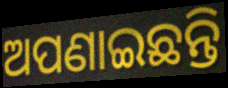
ଅପଣାଇଛନ୍ତି